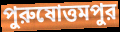
পুরুষোত্তমপুর